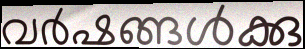
വർഷങ്ങൾക്കു